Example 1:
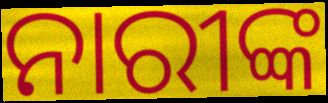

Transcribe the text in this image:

ନାରୀଙ୍କ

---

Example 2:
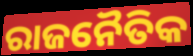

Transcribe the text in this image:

ରାଜନୈତିକ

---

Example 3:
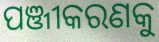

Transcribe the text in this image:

ପଞ୍ଜୀକରଣକୁ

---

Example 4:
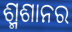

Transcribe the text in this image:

ଶ୍ମଶାନର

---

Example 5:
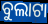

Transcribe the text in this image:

ବୁଲାଟା